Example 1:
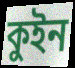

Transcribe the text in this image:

কুইন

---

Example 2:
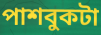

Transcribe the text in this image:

পাশবুকটা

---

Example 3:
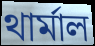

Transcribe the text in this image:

থার্মাল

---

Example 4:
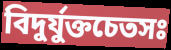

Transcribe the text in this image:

বিদুর্যুক্তচেতসঃ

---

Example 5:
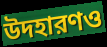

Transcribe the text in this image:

উদহারণও